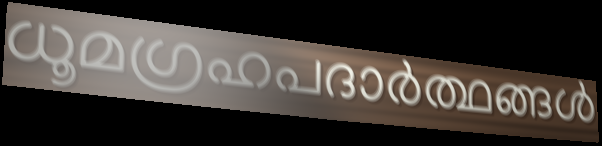
ധൂമഗ്രഹപദാർത്ഥങ്ങൾ